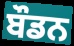
ਬੌਡਨ